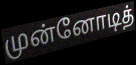
முன்னோடித்